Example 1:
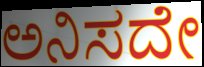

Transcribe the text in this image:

ಅನಿಸದೇ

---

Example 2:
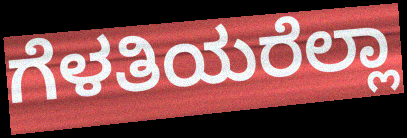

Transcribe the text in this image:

ಗೆಳತಿಯರೆಲ್ಲಾ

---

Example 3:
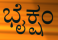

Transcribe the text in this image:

ಭೈಕ್ಷಂ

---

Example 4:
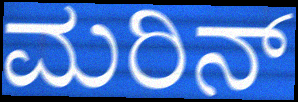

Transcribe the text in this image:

ಮರಿನ್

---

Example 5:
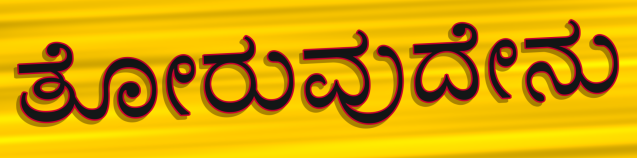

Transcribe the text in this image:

ತೋರುವುದೇನು